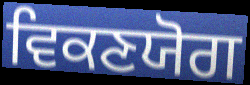
ਵਿਕਣਯੋਗ